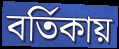
বর্তিকায়